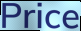
Price